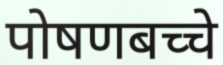
पोषणबच्चे